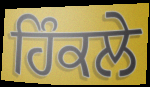
ਹਿੰਕਲੇ